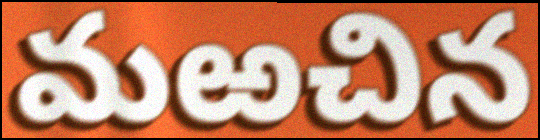
మఱచిన